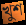
খুশ